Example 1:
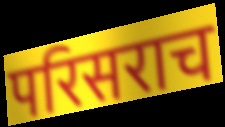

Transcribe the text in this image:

परिसराच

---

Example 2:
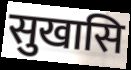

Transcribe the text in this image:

सुखासि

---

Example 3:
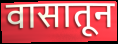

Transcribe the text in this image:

वासातून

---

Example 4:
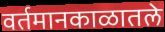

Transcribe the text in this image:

वर्तमानकाळातले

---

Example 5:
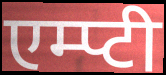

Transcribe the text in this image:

एम्प्टी